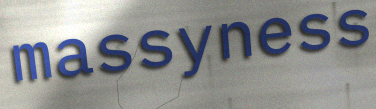
massyness